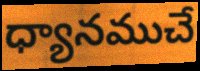
ధ్యానముచే